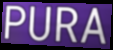
PURA